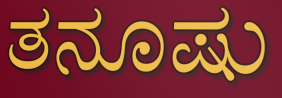
ತನೂಷು